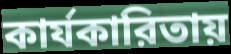
কার্যকারিতায়